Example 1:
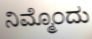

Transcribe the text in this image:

ನಿಮ್ಮೊಂದು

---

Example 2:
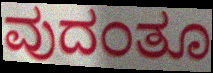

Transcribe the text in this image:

ವುದಂತೂ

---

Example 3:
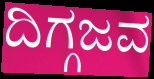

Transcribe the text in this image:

ದಿಗ್ಗಜವ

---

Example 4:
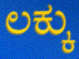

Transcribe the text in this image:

ಲಕ್ಕು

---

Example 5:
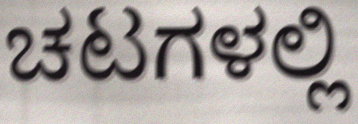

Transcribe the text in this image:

ಚಟಗಳಲ್ಲಿ